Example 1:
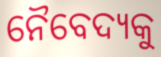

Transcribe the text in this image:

ନୈବେଦ୍ୟକୁ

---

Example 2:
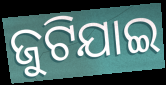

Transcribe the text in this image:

ଜୁଟିଯାଇ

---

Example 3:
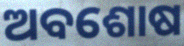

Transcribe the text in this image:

ଅବଶୋଷ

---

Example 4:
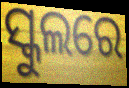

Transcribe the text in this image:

ସ୍କୁଲରେ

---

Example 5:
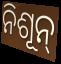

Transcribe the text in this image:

ନିଶୂନ୍